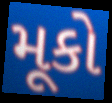
મૂકો